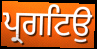
ਪ੍ਰਗਟਿਉ